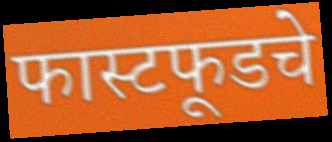
फास्टफूडचे